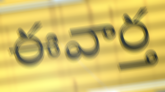
ఈవార్త